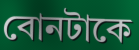
বোনটাকে